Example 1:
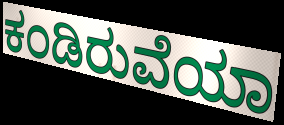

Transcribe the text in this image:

ಕಂಡಿರುವೆಯಾ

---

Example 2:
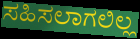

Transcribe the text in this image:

ಸಹಿಸಲಾಗಲಿಲ್ಲ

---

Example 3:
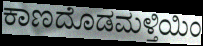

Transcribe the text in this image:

ಕಾಣದೊಡಮಳ್ತಿಯಿಂ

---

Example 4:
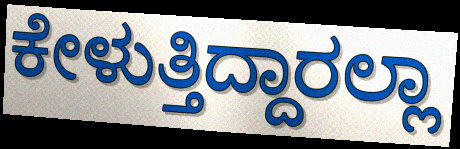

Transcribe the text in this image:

ಕೇಳುತ್ತಿದ್ದಾರಲ್ಲಾ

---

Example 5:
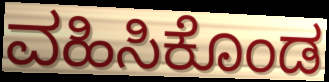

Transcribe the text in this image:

ವಹಿಸಿಕೊಂಡ